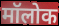
मॉलोक